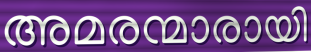
അമരന്മാരായി